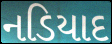
નડિયાદ